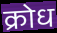
क्रोध